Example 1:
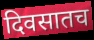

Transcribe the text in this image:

दिवसातच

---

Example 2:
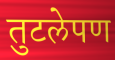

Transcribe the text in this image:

तुटलेपण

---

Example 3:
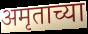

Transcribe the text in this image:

अमृताच्या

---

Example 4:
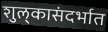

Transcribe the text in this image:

शुल्कासंदर्भात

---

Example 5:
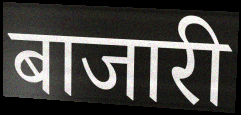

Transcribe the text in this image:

बाजारी